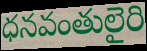
ధనవంతులైరి